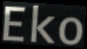
Eko